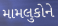
મામલુકોને